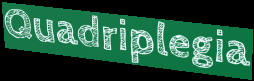
Quadriplegia